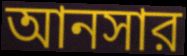
আনসার